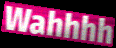
Wahhhh